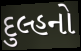
દુલ્હનો